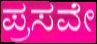
ಪ್ರಸವೇ